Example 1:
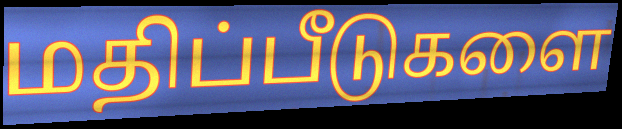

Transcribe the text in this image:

மதிப்பீடுகளை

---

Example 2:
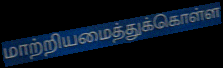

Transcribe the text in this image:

மாற்றியமைத்துக்கொள்ள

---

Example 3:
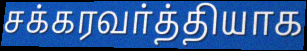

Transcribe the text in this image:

சக்கரவர்த்தியாக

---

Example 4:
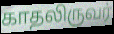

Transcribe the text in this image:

காதலிருவர்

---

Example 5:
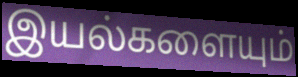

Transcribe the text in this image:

இயல்களையும்